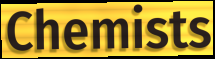
Chemists